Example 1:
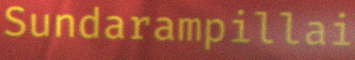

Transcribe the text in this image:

Sundarampillai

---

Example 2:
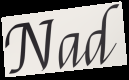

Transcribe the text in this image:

Nad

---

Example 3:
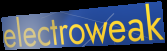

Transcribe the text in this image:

electroweak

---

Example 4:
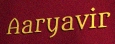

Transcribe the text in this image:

Aaryavir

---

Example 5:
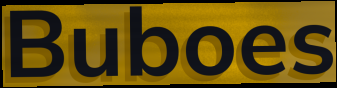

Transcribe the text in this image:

Buboes